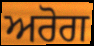
ਅਰੋਗ